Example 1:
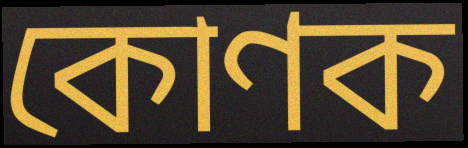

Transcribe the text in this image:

কোণক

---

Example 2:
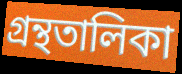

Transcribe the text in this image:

গ্ৰন্থতালিকা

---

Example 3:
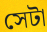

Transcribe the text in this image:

সেটা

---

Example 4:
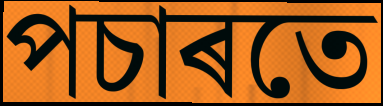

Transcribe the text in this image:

পচাৰতে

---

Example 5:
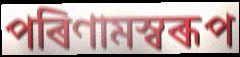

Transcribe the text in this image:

পৰিণামস্বৰূপ